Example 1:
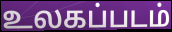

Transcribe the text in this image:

உலகப்படம்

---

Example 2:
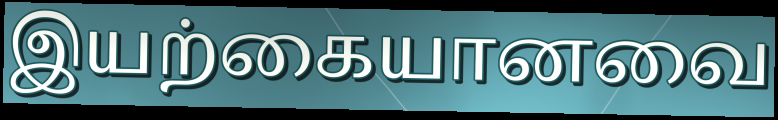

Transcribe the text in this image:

இயற்கையானவை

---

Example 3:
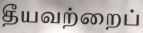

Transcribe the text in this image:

தீயவற்றைப்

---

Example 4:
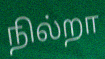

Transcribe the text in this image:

நில்றா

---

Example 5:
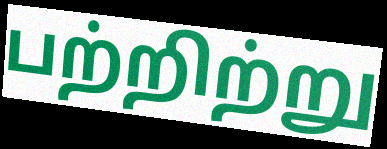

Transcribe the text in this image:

பற்றிற்று